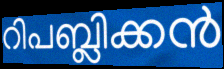
റിപബ്ലിക്കൻ